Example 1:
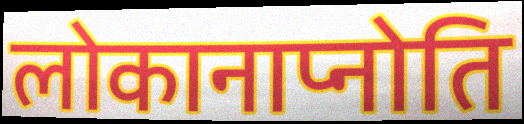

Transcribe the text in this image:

लोकानाप्नोति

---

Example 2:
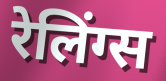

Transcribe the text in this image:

रेलिंग्स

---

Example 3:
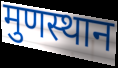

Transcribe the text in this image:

मुणस्थान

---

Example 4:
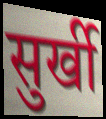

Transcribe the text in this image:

सुर्खी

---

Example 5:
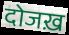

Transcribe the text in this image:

दोजख़